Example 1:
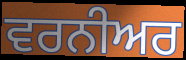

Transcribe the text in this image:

ਵਰਨੀਅਰ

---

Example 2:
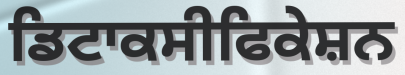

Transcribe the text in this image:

ਡਿਟਾਕਸੀਫਿਕੇਸ਼ਨ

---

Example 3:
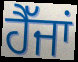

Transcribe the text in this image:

ਹੈੱਜਾਂ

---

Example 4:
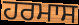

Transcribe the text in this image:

ਹਰਮਾਸ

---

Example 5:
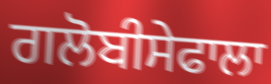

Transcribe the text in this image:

ਗਲੋਬੀਸੇਫਾਲਾ